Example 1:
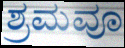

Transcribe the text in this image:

ಶ್ರಮವೂ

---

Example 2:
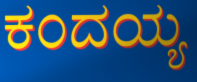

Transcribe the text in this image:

ಕಂದಯ್ಯ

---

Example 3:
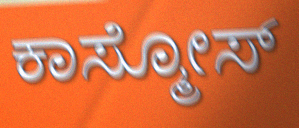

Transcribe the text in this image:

ಕಾಸ್ಮೋಸ್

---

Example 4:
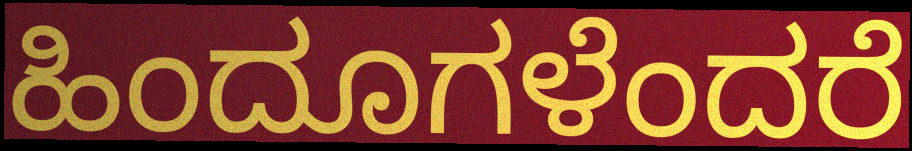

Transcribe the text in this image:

ಹಿಂದೂಗಳೆಂದರೆ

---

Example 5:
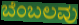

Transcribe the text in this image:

ಬೆಂಬಲವು